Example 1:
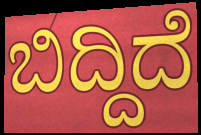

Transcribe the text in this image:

ಬಿದ್ದಿದೆ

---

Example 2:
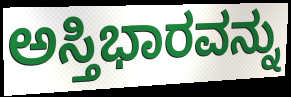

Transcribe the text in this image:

ಅಸ್ತಿಭಾರವನ್ನು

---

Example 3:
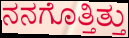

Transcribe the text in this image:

ನನಗೊತ್ತಿತ್ತು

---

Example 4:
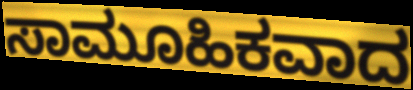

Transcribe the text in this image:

ಸಾಮೂಹಿಕವಾದ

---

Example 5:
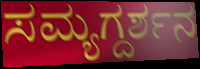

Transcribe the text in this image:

ಸಮ್ಯಗ್ದರ್ಶನ